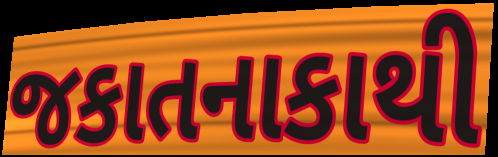
જકાતનાકાથી